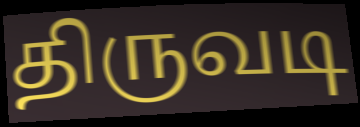
திருவடி